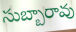
సుబ్బారావు